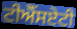
ਟੀਐੱਸਏਟੀ